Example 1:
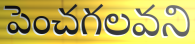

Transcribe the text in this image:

పెంచగలవని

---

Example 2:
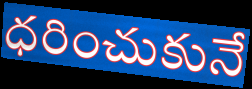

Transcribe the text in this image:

ధరించుకునే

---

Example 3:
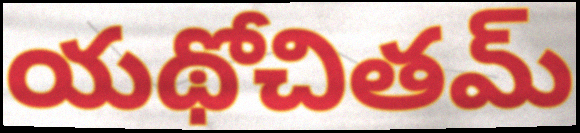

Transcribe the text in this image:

యథోచితమ్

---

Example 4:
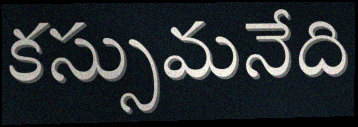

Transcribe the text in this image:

కస్సుమనేది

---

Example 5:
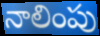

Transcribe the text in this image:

నాలింపు